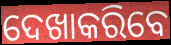
ଦେଖାକରିବେ